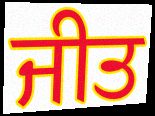
ਜੀਤ